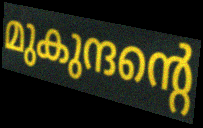
മുകുന്ദന്റെ